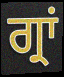
ਗ੍ਰਾਂ